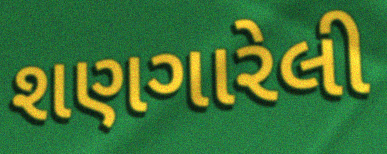
શણગારેલી